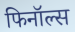
फिनॉल्स